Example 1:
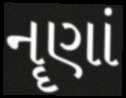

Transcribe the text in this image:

નૄણાં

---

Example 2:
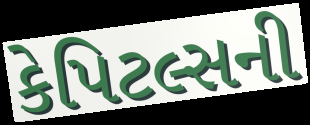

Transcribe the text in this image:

કેપિટલ્સની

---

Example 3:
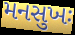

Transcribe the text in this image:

મનસુખઃ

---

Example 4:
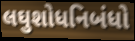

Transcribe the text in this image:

લઘુશોધનિબંધો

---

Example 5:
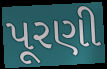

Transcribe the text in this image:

પૂરણી